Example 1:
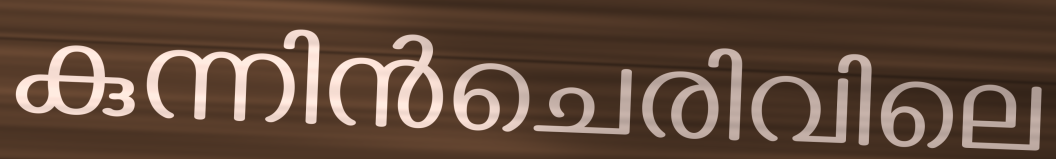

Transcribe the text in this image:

കുന്നിൻചെരിവിലെ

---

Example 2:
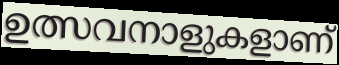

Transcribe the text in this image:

ഉത്സവനാളുകളാണ്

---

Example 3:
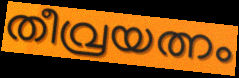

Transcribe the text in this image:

തീവ്രയത്നം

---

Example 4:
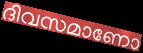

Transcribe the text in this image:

ദിവസമാണോ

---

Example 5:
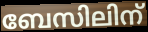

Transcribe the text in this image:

ബേസിലിന്